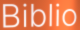
Biblio